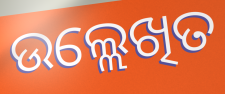
ଉଲ୍ଲେଖିତ